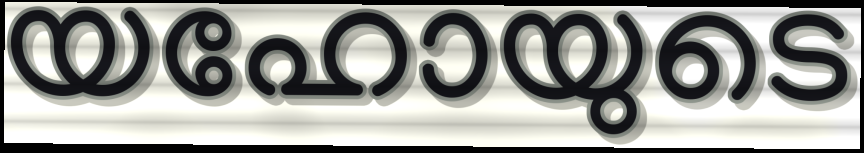
യഹോയുടെ